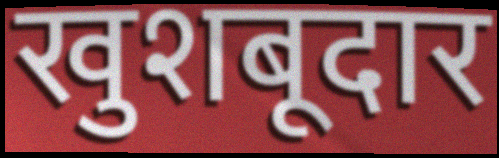
खुशबूदार